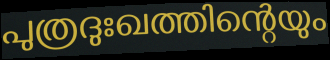
പുത്രദുഃഖത്തിന്റെയും